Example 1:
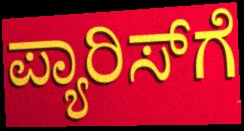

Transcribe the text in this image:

ಪ್ಯಾರಿಸ್‍ಗೆ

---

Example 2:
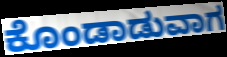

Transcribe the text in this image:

ಕೊಂಡಾಡುವಾಗ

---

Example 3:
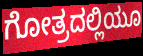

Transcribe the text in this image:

ಗೋತ್ರದಲ್ಲಿಯೂ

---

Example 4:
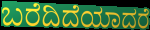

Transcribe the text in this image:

ಬರೆದಿದೆಯಾದರೆ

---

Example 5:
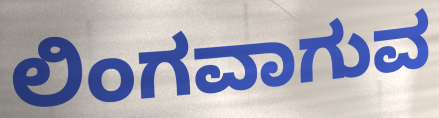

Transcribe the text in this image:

ಲಿಂಗವಾಗುವ